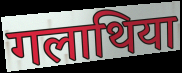
गलाथिया